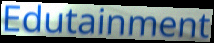
Edutainment